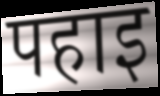
पहाइ